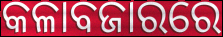
କଳାବଜାରରେ